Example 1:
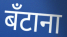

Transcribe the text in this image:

बँटाना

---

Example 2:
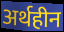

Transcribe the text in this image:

अर्थहीन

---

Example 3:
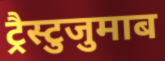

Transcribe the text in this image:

ट्रैस्टुजुमाब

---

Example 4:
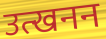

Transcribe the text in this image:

उत्खनन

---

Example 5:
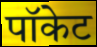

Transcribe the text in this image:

पॉकेट